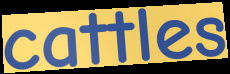
cattles